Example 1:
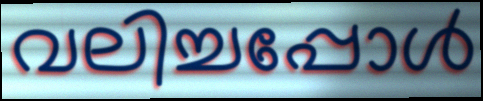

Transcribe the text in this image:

വലിച്ചപ്പോൾ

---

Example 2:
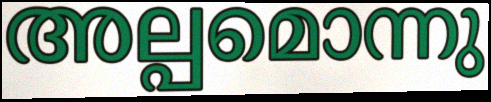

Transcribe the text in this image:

അല്പമൊന്നു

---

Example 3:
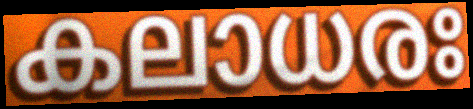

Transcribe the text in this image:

കലാധരഃ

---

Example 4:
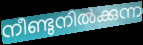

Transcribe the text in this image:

നീണ്ടുനിൽക്കുന്ന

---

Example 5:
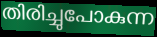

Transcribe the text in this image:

തിരിച്ചുപോകുന്ന